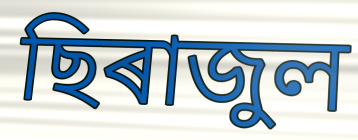
ছিৰাজুল